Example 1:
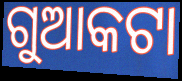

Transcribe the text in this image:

ଗୁଆକଟା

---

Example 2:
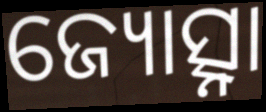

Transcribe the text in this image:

ଜ୍ୟୋତ୍ସ୍ନା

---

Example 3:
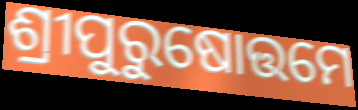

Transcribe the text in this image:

ଶ୍ରୀପୁରୁଷୋତ୍ତମେ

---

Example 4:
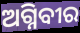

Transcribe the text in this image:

ଅଗ୍ନିବୀର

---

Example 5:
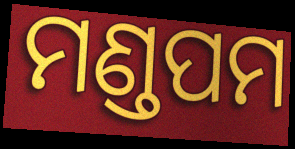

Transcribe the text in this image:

ମଣ୍ଡପମ